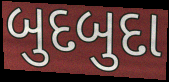
બુદબુદા